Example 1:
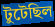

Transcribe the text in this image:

টুটেছিল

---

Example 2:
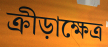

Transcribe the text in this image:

ক্রীড়াক্ষেত্র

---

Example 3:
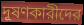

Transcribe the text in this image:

দূষণকারীদের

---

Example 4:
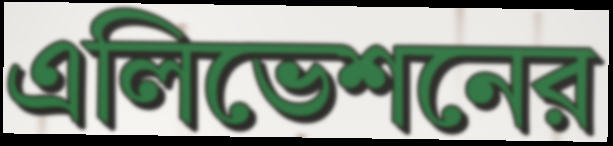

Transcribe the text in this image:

এলিভেশনের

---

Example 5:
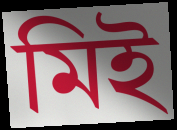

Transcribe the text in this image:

মিই